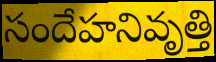
సందేహనివృత్తి